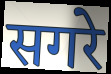
सगरे